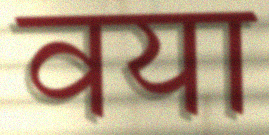
वया